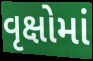
વૃક્ષોમાં